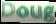
Doug